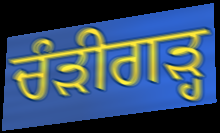
ਚੰੜੀਗੜ੍ਹ